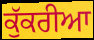
ਕੁੱਕਰੀਆ